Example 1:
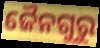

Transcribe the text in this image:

ଜୈନଗୁରୁ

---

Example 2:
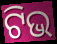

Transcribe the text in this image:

ଟିଭ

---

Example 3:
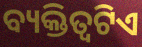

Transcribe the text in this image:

ବ୍ୟକ୍ତିତ୍ବଟିଏ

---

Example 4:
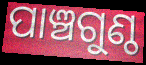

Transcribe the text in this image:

ପାଞ୍ଚଗୁଣ୍ଠ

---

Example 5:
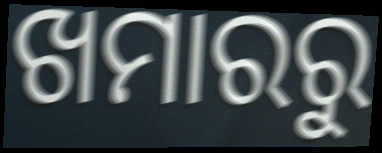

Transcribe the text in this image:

ଖମାରରୁ